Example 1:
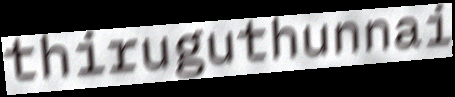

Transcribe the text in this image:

thiruguthunnai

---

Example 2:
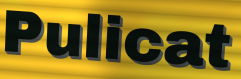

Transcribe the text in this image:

Pulicat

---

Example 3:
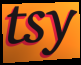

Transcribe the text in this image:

tsy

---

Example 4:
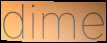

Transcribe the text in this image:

dime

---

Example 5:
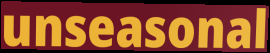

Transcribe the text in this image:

unseasonal